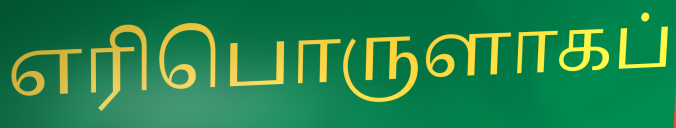
எரிபொருளாகப்